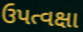
ઉપત્વક્ષા